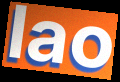
lao